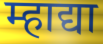
म्हाद्या